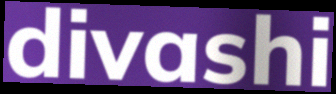
divashi